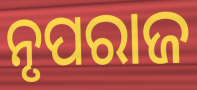
ନୃପରାଜ